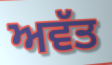
ਅਵੱਤ